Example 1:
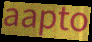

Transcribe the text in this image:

aapto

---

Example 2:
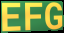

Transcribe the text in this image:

EFG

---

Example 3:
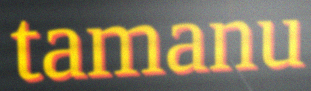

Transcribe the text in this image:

tamanu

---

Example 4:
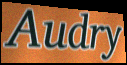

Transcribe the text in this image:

Audry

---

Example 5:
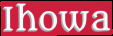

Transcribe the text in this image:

Ihowa